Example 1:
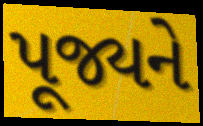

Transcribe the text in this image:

પૂજ્યને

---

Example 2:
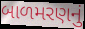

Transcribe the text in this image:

બાળમરણનું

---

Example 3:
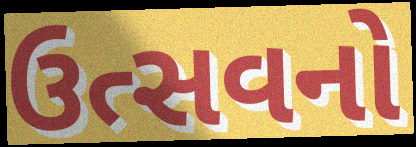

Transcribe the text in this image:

ઉત્સવનો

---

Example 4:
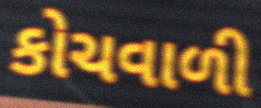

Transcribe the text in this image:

કોચવાળી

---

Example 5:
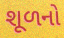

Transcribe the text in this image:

શૂળનો